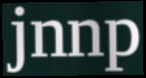
jnnp